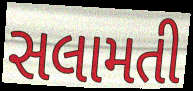
સલામતી